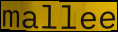
mallee